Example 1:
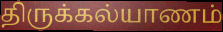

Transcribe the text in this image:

திருக்கல்யாணம்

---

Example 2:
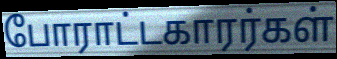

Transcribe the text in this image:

போராட்டகாரர்கள்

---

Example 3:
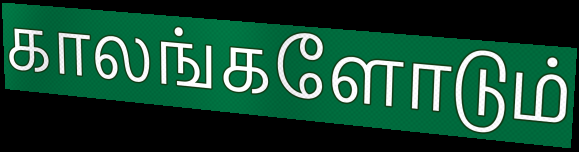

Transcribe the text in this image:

காலங்களோடும்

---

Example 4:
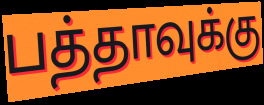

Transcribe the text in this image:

பத்தாவுக்கு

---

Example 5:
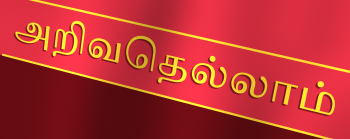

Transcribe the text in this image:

அறிவதெல்லாம்